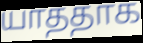
யாததாக